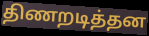
திணறடித்தன